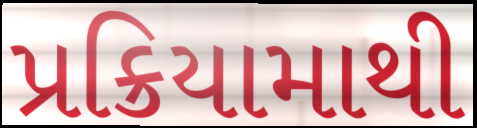
પ્રક્રિયામાથી